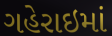
ગહેરાઇમાં